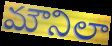
మౌనిలా